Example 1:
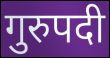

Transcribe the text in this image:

गुरुपदी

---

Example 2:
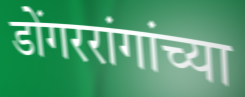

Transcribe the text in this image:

डोंगररांगांच्या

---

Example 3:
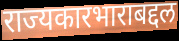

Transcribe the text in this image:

राज्यकारभाराबद्दल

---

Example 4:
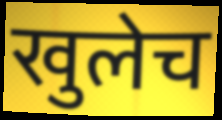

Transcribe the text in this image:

खुलेच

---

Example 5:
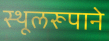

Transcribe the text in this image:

स्थूलरूपाने